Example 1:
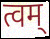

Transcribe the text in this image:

त्वम्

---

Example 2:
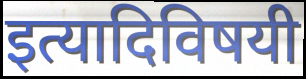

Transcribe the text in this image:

इत्यादिविषयी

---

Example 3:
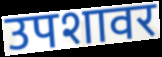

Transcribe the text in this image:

उपशावर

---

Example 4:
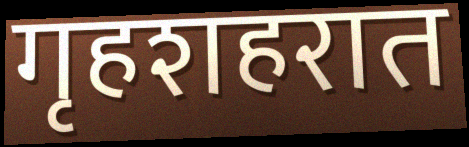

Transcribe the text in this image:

गृहशहरात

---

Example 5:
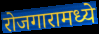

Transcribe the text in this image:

रोजगारामध्ये